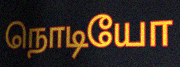
நொடியோ